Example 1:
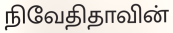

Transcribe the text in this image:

நிவேதிதாவின்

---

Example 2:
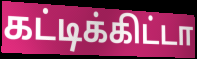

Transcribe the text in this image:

கட்டிக்கிட்டா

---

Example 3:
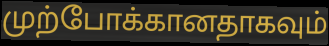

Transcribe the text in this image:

முற்போக்கானதாகவும்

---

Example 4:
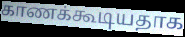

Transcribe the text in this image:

காணக்கூடியதாக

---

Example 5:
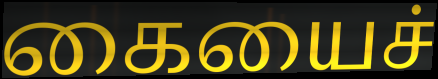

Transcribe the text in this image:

கையைச்